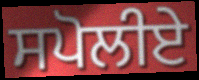
ਸਪੋਲੀਏ